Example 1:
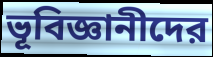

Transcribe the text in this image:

ভূবিজ্ঞানীদের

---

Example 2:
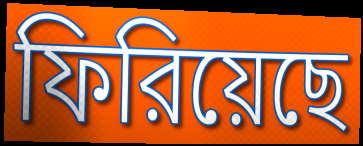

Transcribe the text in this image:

ফিরিয়েছে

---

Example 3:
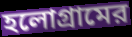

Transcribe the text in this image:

হলোগ্রামের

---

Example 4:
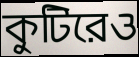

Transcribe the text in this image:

কুটিরেও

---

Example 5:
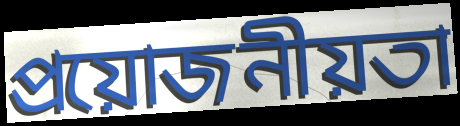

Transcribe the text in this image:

প্রয়োজনীয়তা